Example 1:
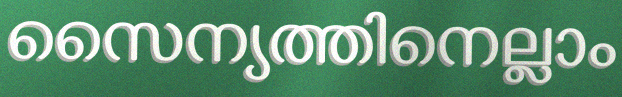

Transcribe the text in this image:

സൈന്യത്തിനെല്ലാം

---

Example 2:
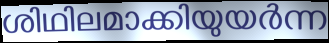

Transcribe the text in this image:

ശിഥിലമാക്കിയുയർന്ന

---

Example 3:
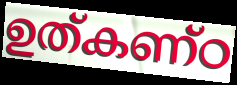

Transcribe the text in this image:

ഉത്കണ്ഠ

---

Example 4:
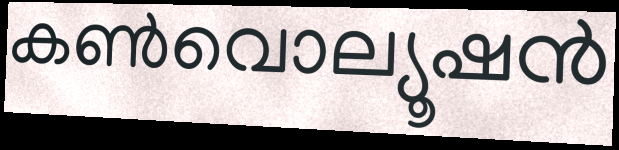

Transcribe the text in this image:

കൺവൊല്യൂഷൻ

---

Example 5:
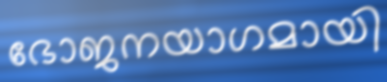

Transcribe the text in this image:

ഭോജനയാഗമായി